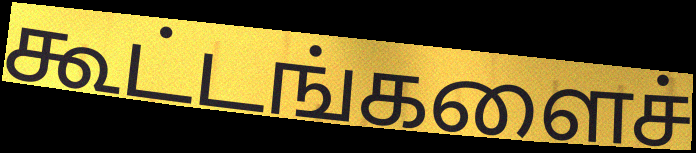
கூட்டங்களைச்